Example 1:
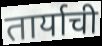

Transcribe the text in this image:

तार्याची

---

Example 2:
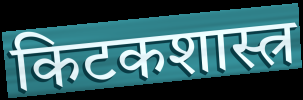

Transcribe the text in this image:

किटकशास्‍त्र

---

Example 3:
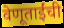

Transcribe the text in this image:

वेणूताईंची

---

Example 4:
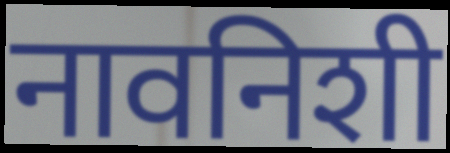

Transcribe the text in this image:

नावनिशी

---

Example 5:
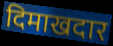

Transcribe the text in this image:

दिमाखदार